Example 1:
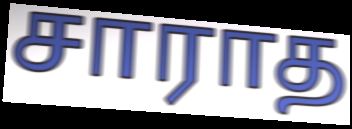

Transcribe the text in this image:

சாராத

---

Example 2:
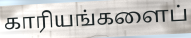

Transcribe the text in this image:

காரியங்களைப்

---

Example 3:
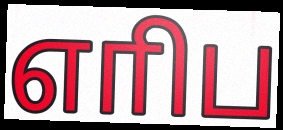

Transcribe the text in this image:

எரிப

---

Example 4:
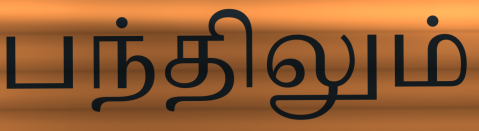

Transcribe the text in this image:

பந்திலும்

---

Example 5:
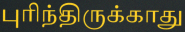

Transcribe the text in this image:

புரிந்திருக்காது